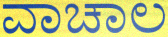
ವಾಚಾಲ